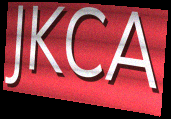
JKCA